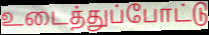
உடைத்துப்போட்டு